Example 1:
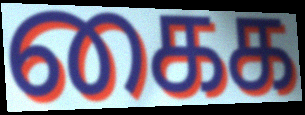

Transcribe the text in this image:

கைக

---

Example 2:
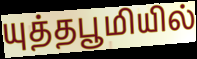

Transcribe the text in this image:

யுத்தபூமியில்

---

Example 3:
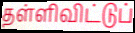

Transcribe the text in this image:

தள்ளிவிட்டுப்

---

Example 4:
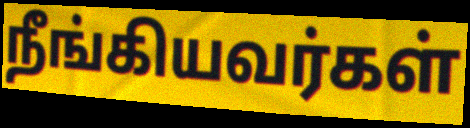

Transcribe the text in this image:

நீங்கியவர்கள்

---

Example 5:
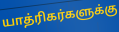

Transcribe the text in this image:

யாத்ரிகர்களுக்கு